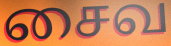
சைவ